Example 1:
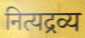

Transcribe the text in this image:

नित्यद्रव्य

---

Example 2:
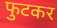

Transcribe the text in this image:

फुटकर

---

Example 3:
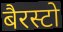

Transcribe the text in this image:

बैरस्टो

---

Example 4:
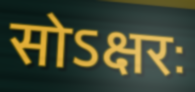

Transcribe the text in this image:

सोऽक्षरः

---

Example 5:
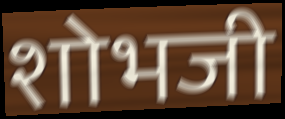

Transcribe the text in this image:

शोभजी